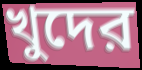
খুদের